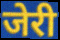
जेरी